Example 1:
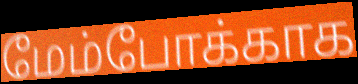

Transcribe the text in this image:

மேம்போக்காக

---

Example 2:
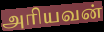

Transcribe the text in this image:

அரியவன்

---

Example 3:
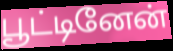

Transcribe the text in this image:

பூட்டினேன்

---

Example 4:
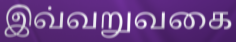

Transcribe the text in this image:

இவ்வறுவகை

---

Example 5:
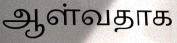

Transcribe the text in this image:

ஆள்வதாக